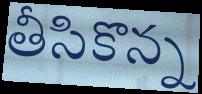
తీసికొన్న